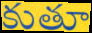
కుతూ